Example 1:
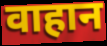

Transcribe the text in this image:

वाहान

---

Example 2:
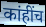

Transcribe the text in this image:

कांहींच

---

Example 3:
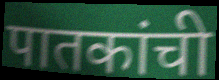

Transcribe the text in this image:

पातकांची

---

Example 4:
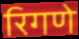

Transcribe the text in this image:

रिगणे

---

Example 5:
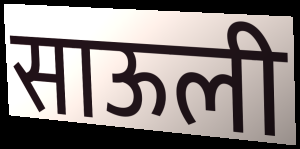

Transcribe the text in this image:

साऊली